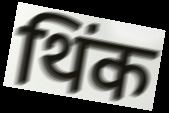
थिंक